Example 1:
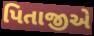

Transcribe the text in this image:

પિતાજીએ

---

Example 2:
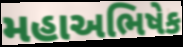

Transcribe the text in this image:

મહાઅભિષેક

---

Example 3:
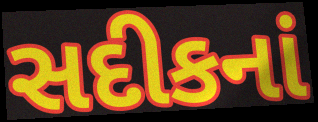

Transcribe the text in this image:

સદીકનાં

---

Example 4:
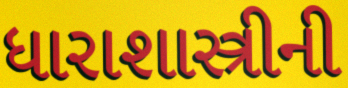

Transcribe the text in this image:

ધારાશાસ્ત્રીની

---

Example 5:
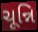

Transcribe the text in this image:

ચૂન્નિ